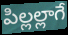
పిల్లల్లాగే